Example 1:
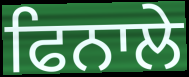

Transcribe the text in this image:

ਫਿਨਾਲੇ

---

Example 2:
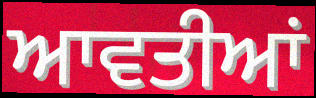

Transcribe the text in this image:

ਆਵਤੀਆਂ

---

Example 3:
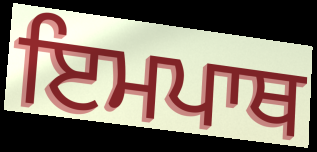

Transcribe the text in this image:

ਇਮਪਾਥ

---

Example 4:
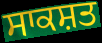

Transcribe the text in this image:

ਸਾਕਸ਼ਤ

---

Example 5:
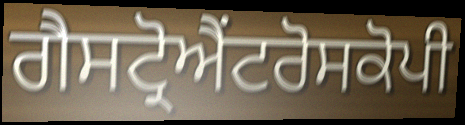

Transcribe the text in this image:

ਗੈਸਟ੍ਰੋਐਂਟਰੋਸਕੋਪੀ